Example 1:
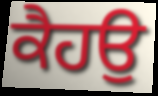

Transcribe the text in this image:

ਕੈਹਉ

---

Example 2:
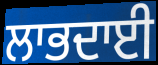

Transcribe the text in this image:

ਲਾਭਦਾਈ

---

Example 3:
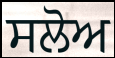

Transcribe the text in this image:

ਸਲੋਅ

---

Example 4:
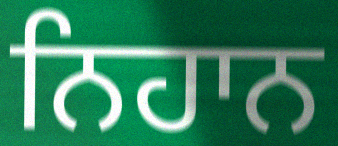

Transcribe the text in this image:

ਨਿਹਾਨ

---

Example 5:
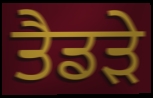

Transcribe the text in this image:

ਤੈਡੜੇ